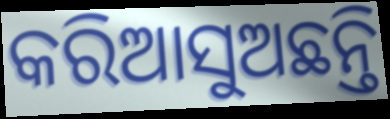
କରିଆସୁଅଛନ୍ତି